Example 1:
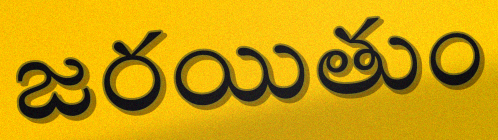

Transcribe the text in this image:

జరయితుం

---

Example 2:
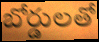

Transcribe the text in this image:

బోర్డులతో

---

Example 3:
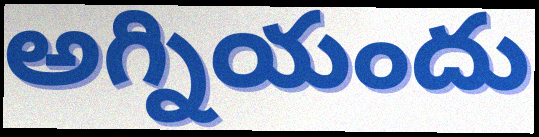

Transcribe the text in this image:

అగ్నియందు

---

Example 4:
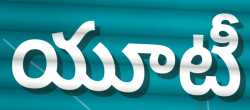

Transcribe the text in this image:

యూటీ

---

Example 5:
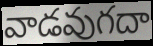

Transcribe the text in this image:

వాడవుగదా